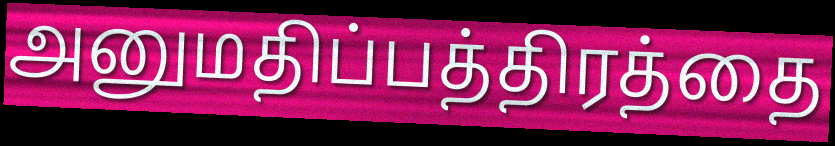
அனுமதிப்பத்திரத்தை